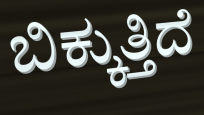
ಬಿಕ್ಕುತ್ತಿದೆ